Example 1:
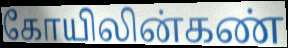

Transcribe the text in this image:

கோயிலின்கண்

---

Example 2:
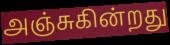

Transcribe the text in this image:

அஞ்சுகின்றது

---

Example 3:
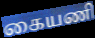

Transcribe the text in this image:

கையணி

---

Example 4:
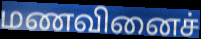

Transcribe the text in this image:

மணவினைச்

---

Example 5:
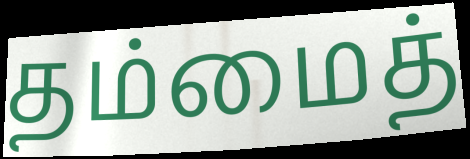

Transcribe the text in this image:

தம்மைத்